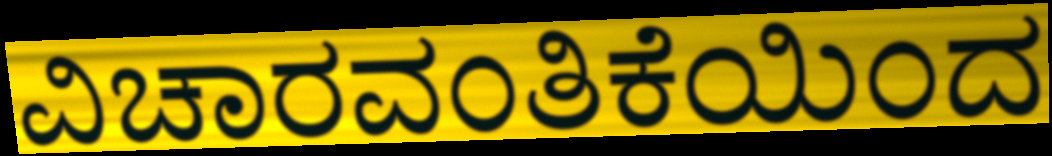
ವಿಚಾರವಂತಿಕೆಯಿಂದ